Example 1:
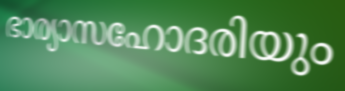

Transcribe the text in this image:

ഭാര്യാസഹോദരിയും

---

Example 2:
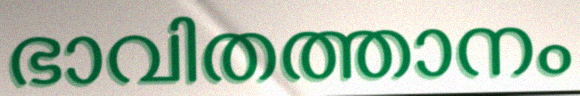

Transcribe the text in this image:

ഭാവിതത്താനം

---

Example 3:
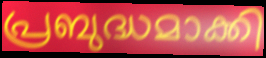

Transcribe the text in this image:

പ്രബുദ്ധമാക്കി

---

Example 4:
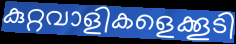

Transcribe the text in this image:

കുറ്റവാളികളെക്കൂടി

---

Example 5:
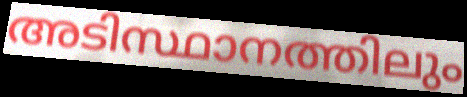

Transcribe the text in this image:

അടിസ്ഥാനത്തിലും